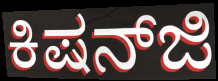
ಕಿಷನ್‌ಜಿ